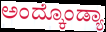
ಅಂದ್ಕೊಂಡ್ಯಾ